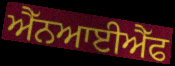
ਐੱਨਆਈਐੱਫ